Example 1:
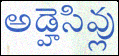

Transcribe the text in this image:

అడ్హెసివ్లు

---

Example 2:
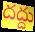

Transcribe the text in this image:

దద్దు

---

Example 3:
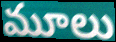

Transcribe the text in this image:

మూలు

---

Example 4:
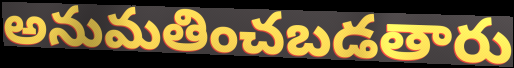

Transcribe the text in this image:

అనుమతించబడతారు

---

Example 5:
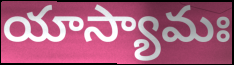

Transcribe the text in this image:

యాస్యామః